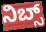
ನಿಬ್ಸ್